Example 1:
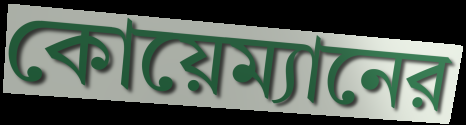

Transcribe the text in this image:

কোয়েম্যানের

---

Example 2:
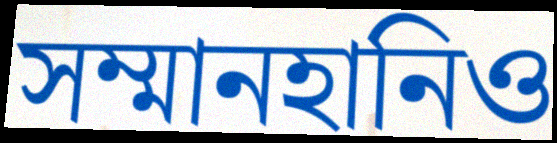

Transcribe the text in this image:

সম্মানহানিও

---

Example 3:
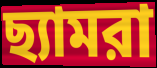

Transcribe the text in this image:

ছ্যামরা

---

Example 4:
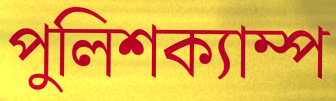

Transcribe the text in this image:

পুলিশক্যাম্প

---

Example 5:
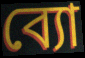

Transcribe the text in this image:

ব্যো